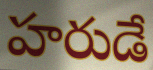
హరుడే